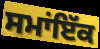
ਸਮਾਂਇੱਕ